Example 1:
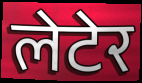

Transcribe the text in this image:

लेटेर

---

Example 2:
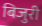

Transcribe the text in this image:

बिजुरी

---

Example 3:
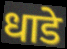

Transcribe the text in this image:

धाडे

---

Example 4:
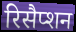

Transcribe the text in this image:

रिसैप्शन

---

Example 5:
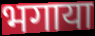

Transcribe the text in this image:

भगाया